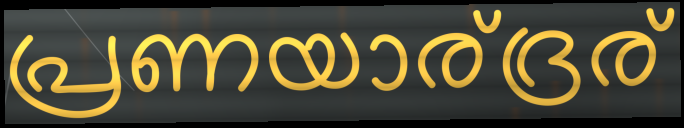
പ്രണയാര്ദ്രര്